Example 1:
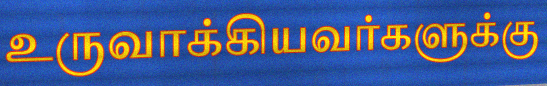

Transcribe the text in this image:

உருவாக்கியவர்களுக்கு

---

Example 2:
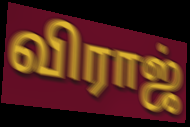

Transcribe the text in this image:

விராஜ்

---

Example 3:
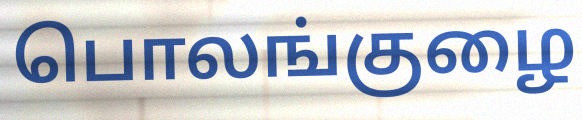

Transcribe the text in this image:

பொலங்குழை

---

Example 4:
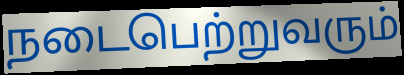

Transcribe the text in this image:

நடைபெற்றுவரும்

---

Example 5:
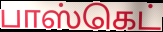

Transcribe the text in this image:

பாஸ்கெட்